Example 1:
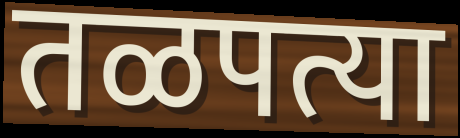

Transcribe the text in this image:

तळपत्या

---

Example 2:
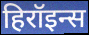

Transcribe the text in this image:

हिरॉइन्स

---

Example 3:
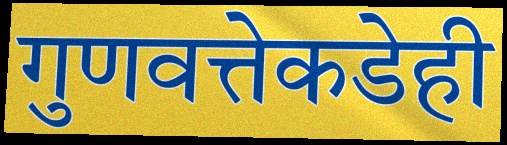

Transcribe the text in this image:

गुणवत्तेकडेही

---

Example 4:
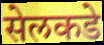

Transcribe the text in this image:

सेलकडे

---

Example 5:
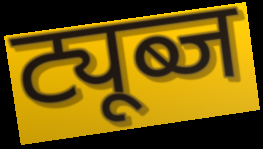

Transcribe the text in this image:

ट्यूब्ज